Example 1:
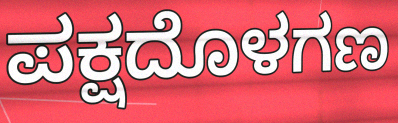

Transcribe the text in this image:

ಪಕ್ಷದೊಳಗಣ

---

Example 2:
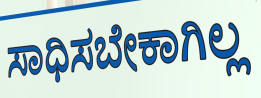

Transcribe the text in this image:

ಸಾಧಿಸಬೇಕಾಗಿಲ್ಲ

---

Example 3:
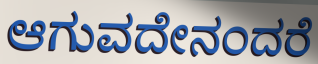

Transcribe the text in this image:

ಆಗುವದೇನಂದರೆ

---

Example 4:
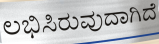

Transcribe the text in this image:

ಲಭಿಸಿರುವುದಾಗಿದೆ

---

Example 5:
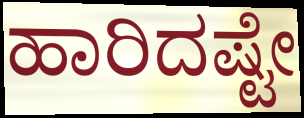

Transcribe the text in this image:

ಹಾರಿದಷ್ಟೇ